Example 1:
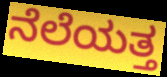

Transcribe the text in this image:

ನೆಲೆಯತ್ತ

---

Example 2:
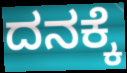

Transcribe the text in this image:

ದನಕ್ಕೆ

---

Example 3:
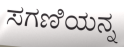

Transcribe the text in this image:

ಸಗಣಿಯನ್ನ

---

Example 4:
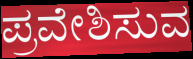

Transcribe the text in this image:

ಪ್ರವೇಶಿಸುವ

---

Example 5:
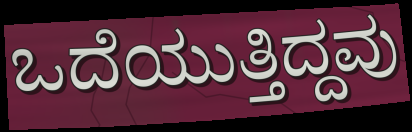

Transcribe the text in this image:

ಒದೆಯುತ್ತಿದ್ದವು